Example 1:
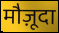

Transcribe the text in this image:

मौज़ूदा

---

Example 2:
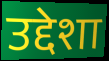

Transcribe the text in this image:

उद्देशा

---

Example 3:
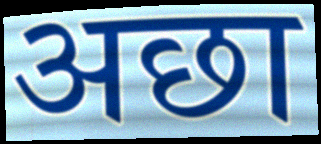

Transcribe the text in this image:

अछा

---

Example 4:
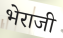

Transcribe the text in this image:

भेराजी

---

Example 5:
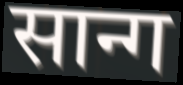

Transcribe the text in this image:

सान्ग